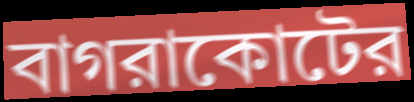
বাগরাকোটের